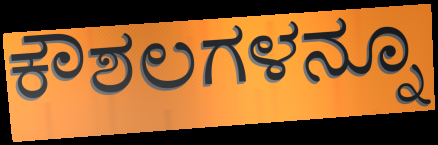
ಕೌಶಲಗಳನ್ನೂ